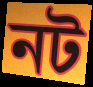
নট